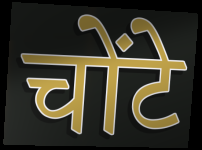
चोंटे